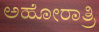
ಅಹೋರಾತ್ರಿ